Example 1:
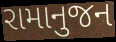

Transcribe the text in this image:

રામાનુજન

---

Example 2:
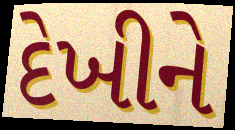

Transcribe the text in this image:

દેખીને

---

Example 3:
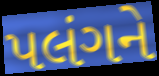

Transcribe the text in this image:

પલંગને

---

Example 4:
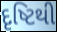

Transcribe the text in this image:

દૃષ્ટિથી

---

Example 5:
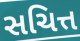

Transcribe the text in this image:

સચિત્ત